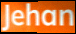
Jehan